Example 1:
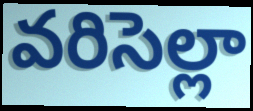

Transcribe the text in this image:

వరిసెల్లా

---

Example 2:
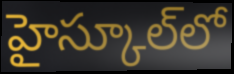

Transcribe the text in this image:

హైస్కూల్‌లో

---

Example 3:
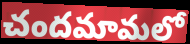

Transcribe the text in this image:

చందమామలో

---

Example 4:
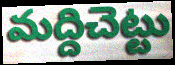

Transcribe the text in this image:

మద్దిచెట్టు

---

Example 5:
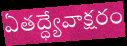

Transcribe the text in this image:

ఏతద్ధ్యేవాక్షరం